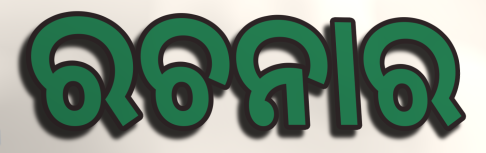
ରଚନାର